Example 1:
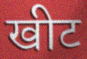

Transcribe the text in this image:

खीट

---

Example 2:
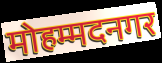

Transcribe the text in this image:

मोहम्मदनगर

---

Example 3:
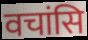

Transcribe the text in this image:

वचांसि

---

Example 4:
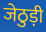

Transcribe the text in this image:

जेठुड़ी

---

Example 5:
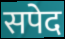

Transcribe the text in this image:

सपेद